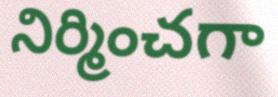
నిర్మించగా